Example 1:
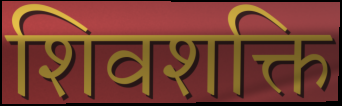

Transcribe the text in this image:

शिवशक्ति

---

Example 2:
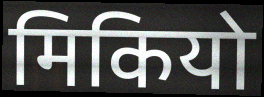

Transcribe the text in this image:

मिकियो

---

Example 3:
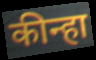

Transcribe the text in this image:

कीन्हा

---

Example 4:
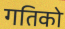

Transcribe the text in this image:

गतिको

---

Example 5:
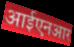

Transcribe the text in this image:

आईएनआर